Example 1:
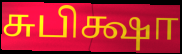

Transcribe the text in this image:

சுபிக்ஷா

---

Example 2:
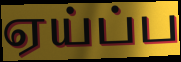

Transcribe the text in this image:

ஏய்ப்ப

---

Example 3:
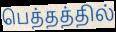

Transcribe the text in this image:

பெத்தத்தில்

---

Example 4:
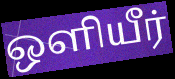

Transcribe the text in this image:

ஒளியீர்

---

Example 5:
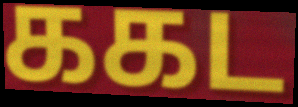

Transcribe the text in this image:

ககட